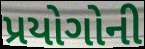
પ્રયોગોની